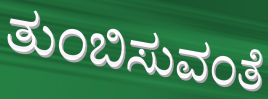
ತುಂಬಿಸುವಂತೆ